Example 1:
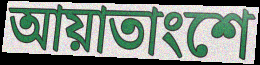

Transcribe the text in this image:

আয়াতাংশে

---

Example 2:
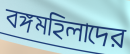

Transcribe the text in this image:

বঙ্গমহিলাদের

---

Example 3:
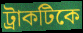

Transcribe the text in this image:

ট্রাকটিকে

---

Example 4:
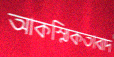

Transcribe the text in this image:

আকস্মিকতাবাদ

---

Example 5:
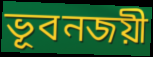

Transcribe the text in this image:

ভূবনজয়ী